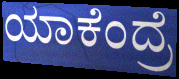
ಯಾಕೆಂದ್ರೆ